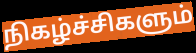
நிகழ்ச்சிகளும்